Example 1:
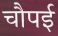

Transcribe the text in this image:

चौपई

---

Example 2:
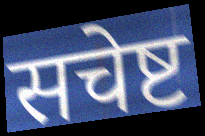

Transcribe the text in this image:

सचेष्ट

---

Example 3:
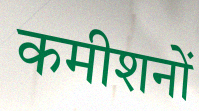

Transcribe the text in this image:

कमीशनों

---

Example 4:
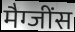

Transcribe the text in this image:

मैग्जींस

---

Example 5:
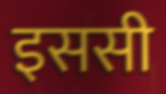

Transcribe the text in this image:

इससी